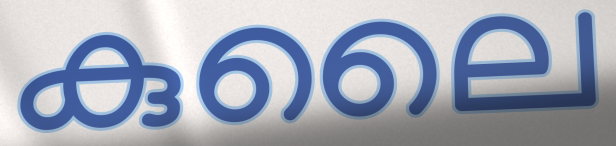
കുലൈ